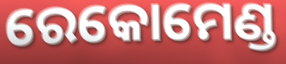
ରେକୋମେଣ୍ଡ